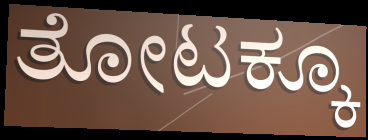
ತೋಟಕ್ಕೂ